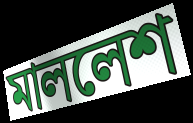
মাললেশ